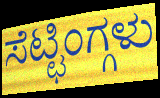
ಸೆಟ್ಟಿಂಗ್ಗಳು